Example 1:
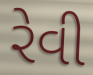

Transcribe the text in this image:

રેવી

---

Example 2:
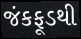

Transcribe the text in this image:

જંકફૂડથી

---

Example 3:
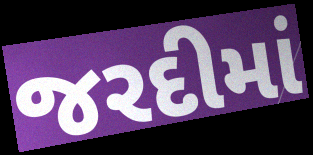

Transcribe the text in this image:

જરદીમાં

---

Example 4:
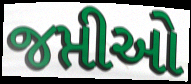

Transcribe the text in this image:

જપ્તીઓ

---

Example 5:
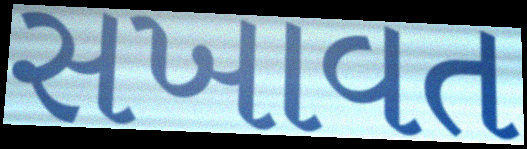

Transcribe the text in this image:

સખાવત